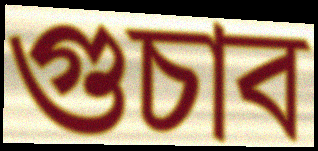
গুচাব